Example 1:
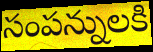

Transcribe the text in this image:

సంపన్నులకి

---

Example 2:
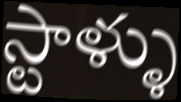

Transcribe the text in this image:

స్టాళ్ళు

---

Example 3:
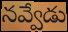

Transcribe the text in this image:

నవ్వేడు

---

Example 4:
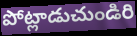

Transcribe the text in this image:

పోట్లాడుచుండిరి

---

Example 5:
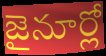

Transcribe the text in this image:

జైనూర్లో